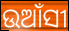
ଉଆଁସୀ